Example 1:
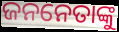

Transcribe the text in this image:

ଜନନେତାଙ୍କୁ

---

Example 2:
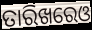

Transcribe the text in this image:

ତାରିଖରେଓ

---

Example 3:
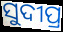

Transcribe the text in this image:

ସୁଦୀପ୍ର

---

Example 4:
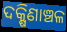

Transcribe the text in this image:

ଦକ୍ଷିଣାଞ୍ଚଳ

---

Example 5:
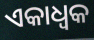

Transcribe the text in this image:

ଏକାଧ୍ଵକ